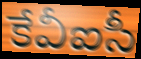
కేవీఐసీ